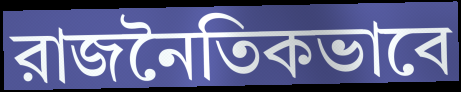
রাজনৈতিকভাবে